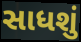
સાધશું